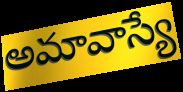
అమావాస్యే